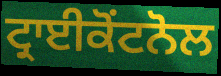
ਟ੍ਰਾਈਕੋਂਟਨੋਲ